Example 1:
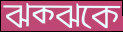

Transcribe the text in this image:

ঝক্ঝকে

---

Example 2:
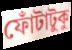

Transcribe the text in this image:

ফোঁটাটুকু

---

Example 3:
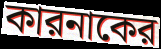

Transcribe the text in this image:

কারনাকের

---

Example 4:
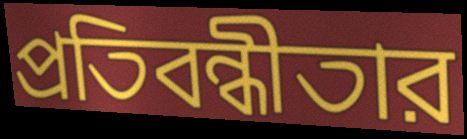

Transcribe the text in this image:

প্রতিবন্ধীতার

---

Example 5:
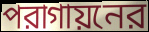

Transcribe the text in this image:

পরাগায়নের